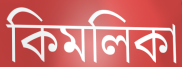
কিমলিকা